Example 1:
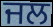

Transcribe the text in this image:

ਜਲ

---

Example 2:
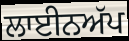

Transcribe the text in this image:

ਲਾਈਨਅੱਪ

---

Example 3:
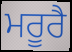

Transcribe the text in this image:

ਮਰੂਰੈ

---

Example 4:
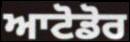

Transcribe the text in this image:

ਆਟੋਡੋਰ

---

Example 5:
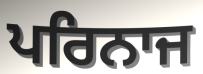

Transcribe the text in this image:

ਪਰਿਨਾਜ